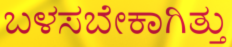
ಬಳಸಬೇಕಾಗಿತ್ತು